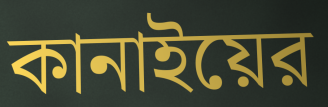
কানাইয়ের